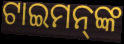
ଟାଇମନ୍‌ଙ୍କ